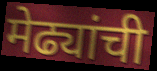
मेढ्यांची